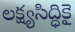
లక్ష్యసిద్ధికై